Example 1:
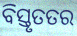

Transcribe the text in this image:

ବିସ୍ତୃତତର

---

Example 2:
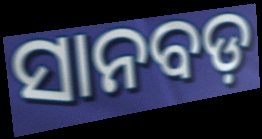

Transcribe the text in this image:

ସାନବଡ଼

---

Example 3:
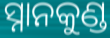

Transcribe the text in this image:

ସ୍ନାନକୁଣ୍ଡ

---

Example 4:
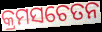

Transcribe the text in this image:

କ୍ରମସଚେତନ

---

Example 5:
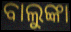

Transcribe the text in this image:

ବାଲୁଙ୍କା